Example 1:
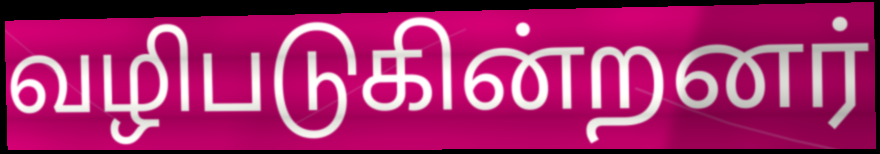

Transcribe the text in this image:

வழிபடுகின்றனர்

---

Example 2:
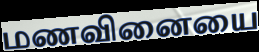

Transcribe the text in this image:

மணவினையை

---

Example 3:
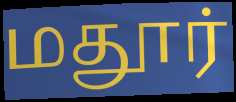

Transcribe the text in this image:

மதூர்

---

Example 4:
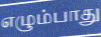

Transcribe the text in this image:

எழும்பாது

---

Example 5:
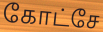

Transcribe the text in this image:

கோட்சே